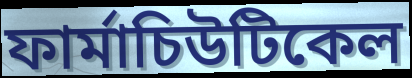
ফাৰ্মাচিউটিকেল